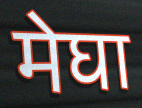
मेघा